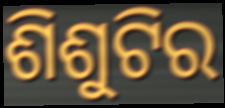
ଶିଶୁଟିର